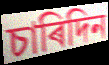
চাৰিদিন